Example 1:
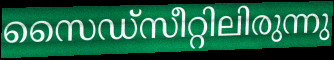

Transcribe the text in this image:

സൈഡ്സീറ്റിലിരുന്നു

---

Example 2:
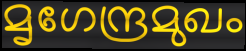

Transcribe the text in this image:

മൃഗേന്ദ്രമുഖം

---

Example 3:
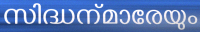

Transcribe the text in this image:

സിദ്ധന്‌മാരേയും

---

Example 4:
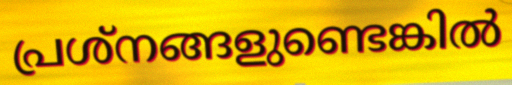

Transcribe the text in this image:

പ്രശ്നങ്ങളുണ്ടെങ്കിൽ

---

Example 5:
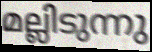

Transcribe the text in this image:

മല്ലിടുന്നു